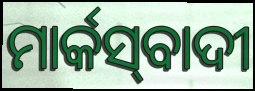
ମାର୍କସ୍‍ବାଦୀ